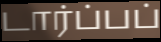
டார்ப்பப்